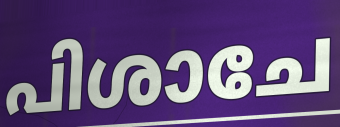
പിശാചേ